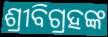
ଶ୍ରୀବିଗ୍ରହଙ୍କ